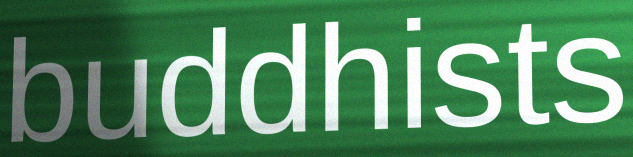
buddhists